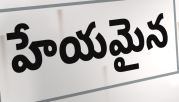
హేయమైన